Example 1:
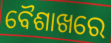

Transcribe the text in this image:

ବୈଶାଖରେ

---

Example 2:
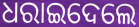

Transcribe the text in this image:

ଧରାଇଦେଲେ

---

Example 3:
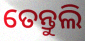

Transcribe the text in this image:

ତେନ୍ତୁଲି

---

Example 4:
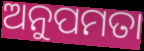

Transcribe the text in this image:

ଅନୁପମତା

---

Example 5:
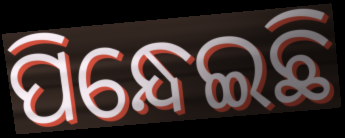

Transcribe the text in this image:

ପିନ୍ଧେଇଛି